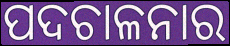
ପଦଚାଳନାର